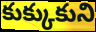
కుక్కుకుని